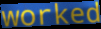
worked